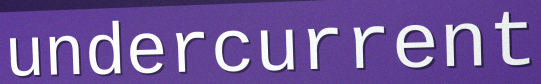
undercurrent